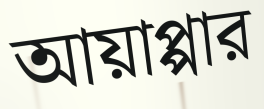
আয়াপ্পার